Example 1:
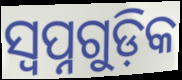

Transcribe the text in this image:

ସ୍ଵପ୍ନଗୁଡ଼ିକ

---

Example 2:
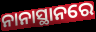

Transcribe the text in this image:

ନାନାସ୍ଥାନରେ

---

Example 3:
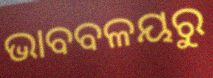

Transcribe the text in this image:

ଭାବବଳୟରୁ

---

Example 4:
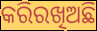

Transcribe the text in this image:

କରିରଖିଅଛି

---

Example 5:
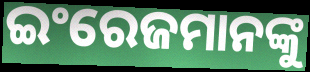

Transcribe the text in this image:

ଇଂରେଜମାନଙ୍କୁ